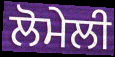
ਲੋਮੇਲੀ